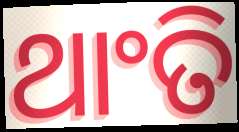
ଥାଂତି